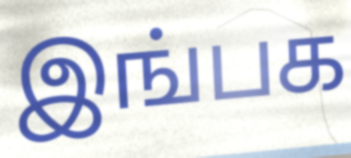
இங்பக